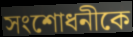
সংশোধনীকে